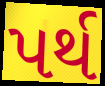
પર્થ